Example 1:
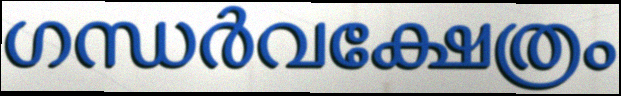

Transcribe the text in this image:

ഗന്ധർവക്ഷേത്രം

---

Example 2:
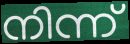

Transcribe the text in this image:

നിന്ന്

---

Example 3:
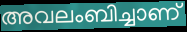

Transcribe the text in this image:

അവലംബിച്ചാണ്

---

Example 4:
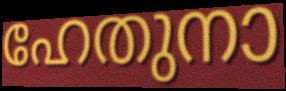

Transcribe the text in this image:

ഹേതുനാ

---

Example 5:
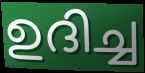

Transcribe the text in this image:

ഉദിച്ച